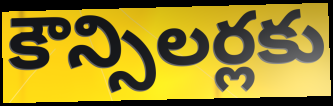
కౌన్సిలర్లకు